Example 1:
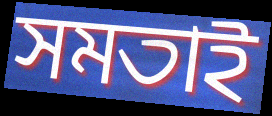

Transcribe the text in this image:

সমতাই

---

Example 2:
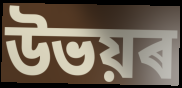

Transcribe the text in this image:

উভয়ৰ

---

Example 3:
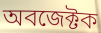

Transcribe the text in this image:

অবজেক্টক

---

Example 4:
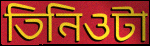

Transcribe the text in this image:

তিনিওটা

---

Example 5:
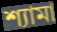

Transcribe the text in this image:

শ্যামা